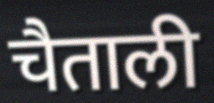
चैताली